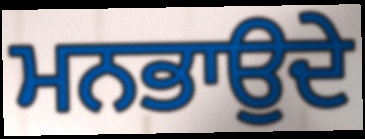
ਮਨਭਾਉਦੇ